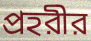
প্রহরীর